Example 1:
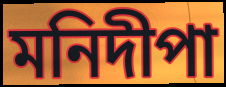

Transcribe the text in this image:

মনিদীপা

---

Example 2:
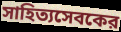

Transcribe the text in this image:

সাহিত্যসেবকের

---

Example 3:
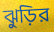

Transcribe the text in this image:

ঝুড়ির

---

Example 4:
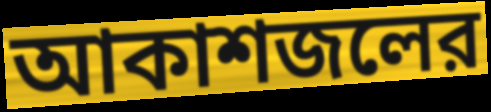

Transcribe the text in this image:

আকাশজলের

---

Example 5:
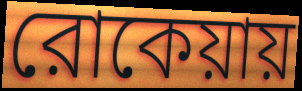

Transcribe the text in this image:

রোকেয়ায়